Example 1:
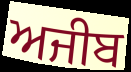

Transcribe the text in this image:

ਅਜੀਬ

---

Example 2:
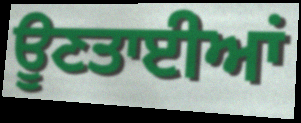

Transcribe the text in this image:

ਊਣਤਾਈਆਂ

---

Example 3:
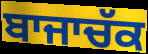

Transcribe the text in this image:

ਬਾਜਾਚੱਕ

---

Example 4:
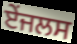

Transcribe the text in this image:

ਏਂਜਲਸ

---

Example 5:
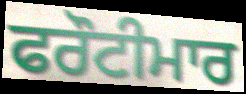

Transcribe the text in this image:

ਫਰੌਟੀਮਾਰ